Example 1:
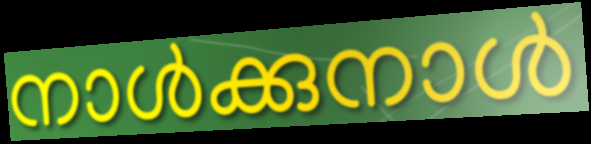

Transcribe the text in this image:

നാൾക്കുനാൾ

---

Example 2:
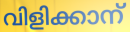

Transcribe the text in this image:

വിളിക്കാന്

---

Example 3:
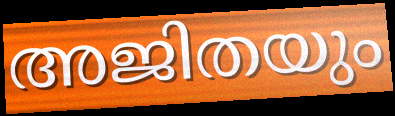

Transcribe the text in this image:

അജിതയും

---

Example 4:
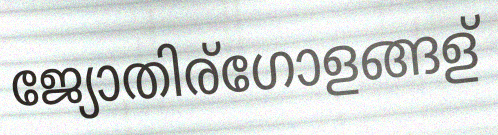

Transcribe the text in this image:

ജ്യോതിര്ഗോളങ്ങള്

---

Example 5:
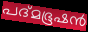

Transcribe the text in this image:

പദ്മഭൂഷൻ